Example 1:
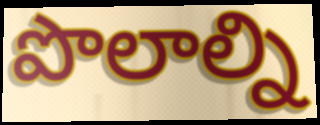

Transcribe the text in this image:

పొలాల్ని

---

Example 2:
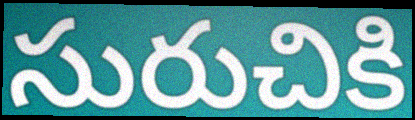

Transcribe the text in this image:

సురుచికి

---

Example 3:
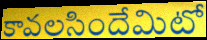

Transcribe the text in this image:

కావలసిందేమిటో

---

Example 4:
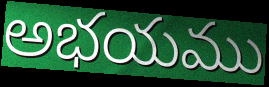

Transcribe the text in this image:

అభయము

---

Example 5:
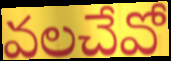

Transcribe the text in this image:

వలచేవో